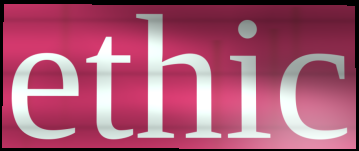
ethic